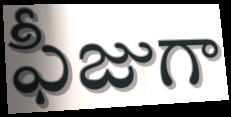
ఫీజుగా